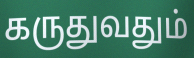
கருதுவதும்